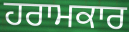
ਹਰਾਮਕਾਰ